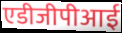
एडीजीपीआई